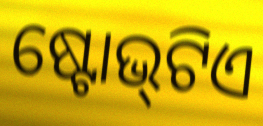
ଷ୍ଟୋଭ୍‌ଟିଏ